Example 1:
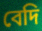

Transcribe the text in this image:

বেদি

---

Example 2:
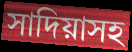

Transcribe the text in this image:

সাদিয়াসহ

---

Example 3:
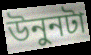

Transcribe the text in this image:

উনুনটা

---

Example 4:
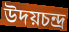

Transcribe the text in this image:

উদয়চন্দ্র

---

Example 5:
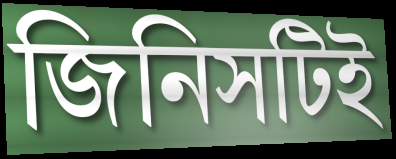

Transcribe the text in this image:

জিনিসটিই